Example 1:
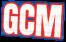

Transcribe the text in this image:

GCM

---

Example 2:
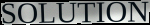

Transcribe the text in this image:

SOLUTION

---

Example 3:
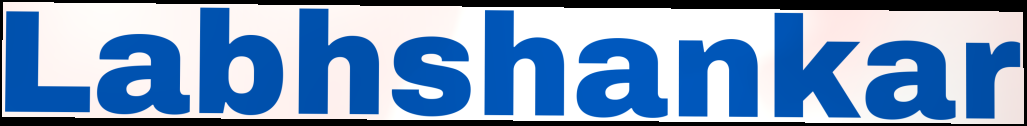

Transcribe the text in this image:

Labhshankar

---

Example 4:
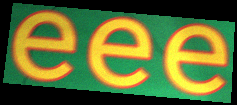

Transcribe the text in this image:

eee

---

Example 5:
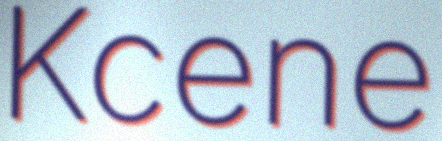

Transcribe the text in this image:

Kcene